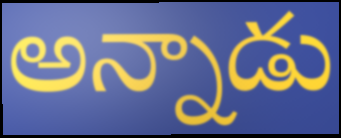
అన్నాడు